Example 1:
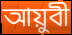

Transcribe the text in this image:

আয়ুবী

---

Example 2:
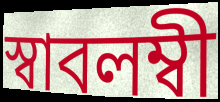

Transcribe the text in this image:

স্বাবলম্বী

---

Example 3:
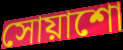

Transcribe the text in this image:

সোয়াশো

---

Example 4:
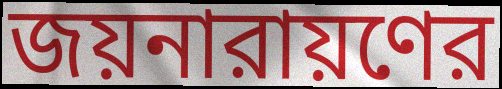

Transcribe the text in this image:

জয়নারায়ণের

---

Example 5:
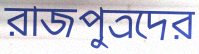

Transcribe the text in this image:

রাজপুত্রদের